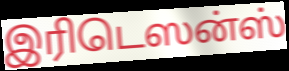
இரிடெஸன்ஸ்